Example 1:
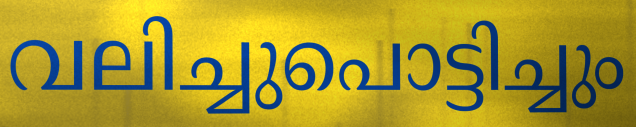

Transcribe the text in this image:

വലിച്ചുപൊട്ടിച്ചും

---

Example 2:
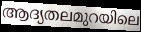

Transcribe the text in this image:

ആദ്യതലമുറയിലെ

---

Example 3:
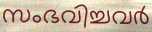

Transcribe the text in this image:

സംഭവിച്ചവർ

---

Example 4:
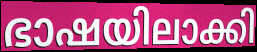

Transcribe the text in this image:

ഭാഷയിലാക്കി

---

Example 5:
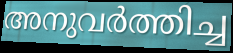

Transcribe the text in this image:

അനുവർത്തിച്ച